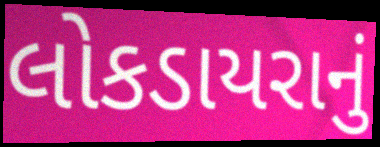
લોકડાયરાનું